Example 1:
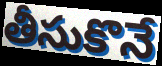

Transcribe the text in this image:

తీసుకొనే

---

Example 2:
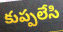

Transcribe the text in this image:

కుప్పలేసి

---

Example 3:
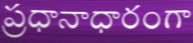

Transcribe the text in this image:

ప్రధానాధారంగా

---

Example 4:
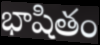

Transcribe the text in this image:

భాషితం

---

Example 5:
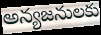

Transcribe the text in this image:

అన్యజనులకు